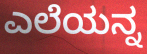
ಎಲೆಯನ್ನ